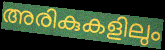
അരികുകളിലും